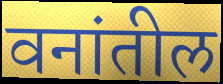
वनांतील